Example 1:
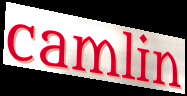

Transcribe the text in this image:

camlin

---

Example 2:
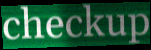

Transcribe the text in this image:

checkup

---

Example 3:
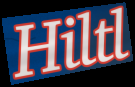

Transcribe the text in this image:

Hiltl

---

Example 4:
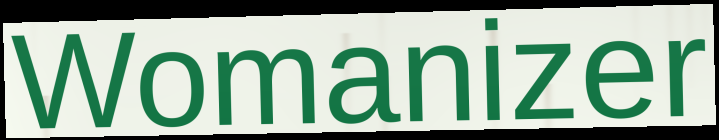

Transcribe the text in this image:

Womanizer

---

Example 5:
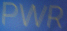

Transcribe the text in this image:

PWR